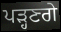
ਪੜ੍ਹਣਗੇ